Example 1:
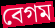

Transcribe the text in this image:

বেগম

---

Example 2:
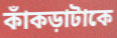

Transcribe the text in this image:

কাঁকড়াটাকে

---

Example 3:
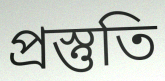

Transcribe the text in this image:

প্রস্তুতি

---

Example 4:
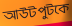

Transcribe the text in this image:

আউটপুটকে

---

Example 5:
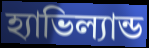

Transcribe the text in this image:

হ্যাভিল্যান্ড